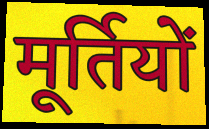
मूर्तियों